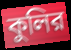
কুলির